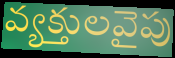
వ్యక్తులవైపు